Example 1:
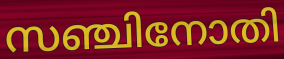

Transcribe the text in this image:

സഞ്ചിനോതി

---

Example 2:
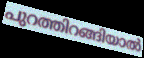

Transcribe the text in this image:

പുറത്തിറങ്ങിയാൽ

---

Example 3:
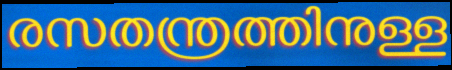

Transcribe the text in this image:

രസതന്ത്രത്തിനുള്ള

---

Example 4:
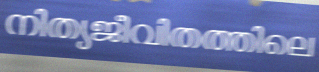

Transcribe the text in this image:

നിത്യജീവിതത്തിലെ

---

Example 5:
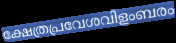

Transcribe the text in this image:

ക്ഷേത്രപ്രവേശവിളംബരം